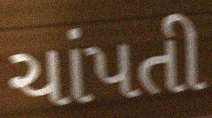
ચાંપતી